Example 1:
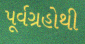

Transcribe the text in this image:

પૂર્વગ્રહોથી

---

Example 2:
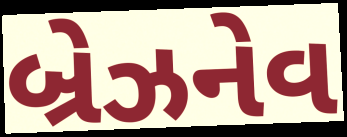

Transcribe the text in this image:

બ્રેઝનેવ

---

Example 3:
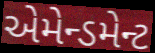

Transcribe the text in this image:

એમેન્ડમેન્ટ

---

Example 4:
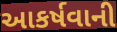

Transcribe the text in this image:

આકર્ષવાની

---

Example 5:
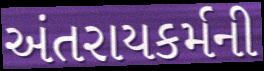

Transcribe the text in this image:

અંતરાયકર્મની